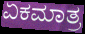
ಏಕಮಾತ್ರ